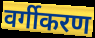
वर्गीकरण